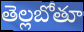
తెల్లబోతూ